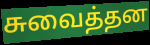
சுவைத்தன